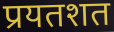
प्रयतशत